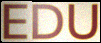
EDU